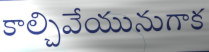
కాల్చివేయునుగాక